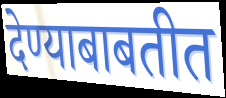
देण्याबाबतीत